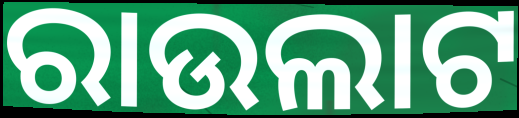
ରାଉଲାଟ